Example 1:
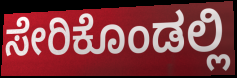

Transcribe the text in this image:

ಸೇರಿಕೊಂಡಲ್ಲಿ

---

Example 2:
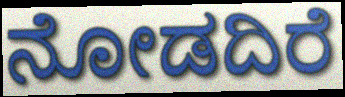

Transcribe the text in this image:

ನೋಡದಿರೆ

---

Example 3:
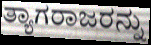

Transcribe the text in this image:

ತ್ಯಾಗರಾಜರನ್ನು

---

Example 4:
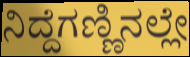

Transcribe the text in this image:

ನಿದ್ದೆಗಣ್ಣಿನಲ್ಲೇ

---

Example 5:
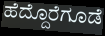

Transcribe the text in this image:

ಹೆದ್ದೊರೆಗೂಡೆ